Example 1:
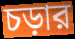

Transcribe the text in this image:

চড়ার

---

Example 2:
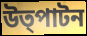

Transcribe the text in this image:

উত্পাটন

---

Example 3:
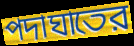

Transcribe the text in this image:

পদাঘাতের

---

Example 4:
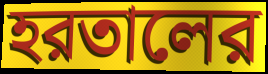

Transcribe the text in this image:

হরতালের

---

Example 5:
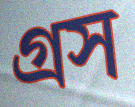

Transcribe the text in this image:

গ্রস